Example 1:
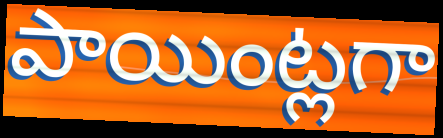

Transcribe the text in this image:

పాయింట్లగా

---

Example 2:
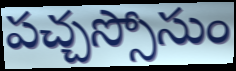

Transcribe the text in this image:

పచ్చస్సోసుం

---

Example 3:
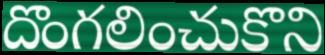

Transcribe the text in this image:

దొంగలించుకొని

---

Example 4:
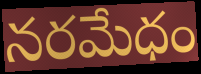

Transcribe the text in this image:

నరమేధం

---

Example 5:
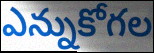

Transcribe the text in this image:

ఎన్నుకోగల